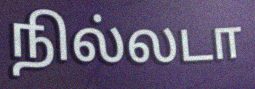
நில்லடா